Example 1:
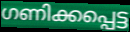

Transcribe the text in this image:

ഗണിക്കപ്പെട്ട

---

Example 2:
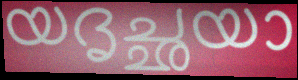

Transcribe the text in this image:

യദൃച്ഛയാ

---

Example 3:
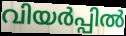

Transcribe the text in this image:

വിയർപ്പിൽ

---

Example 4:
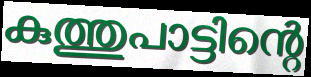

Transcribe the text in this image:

കുത്തുപാട്ടിന്റെ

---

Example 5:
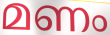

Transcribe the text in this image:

മണം